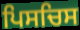
ਪਿਸਚਿਸ